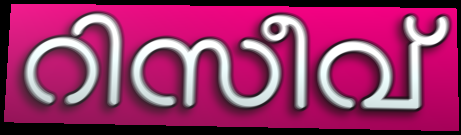
റിസീവ്